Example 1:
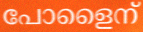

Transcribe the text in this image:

പോളൈന്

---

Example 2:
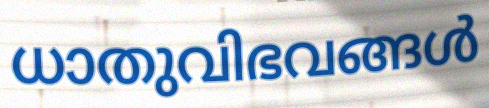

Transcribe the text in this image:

ധാതുവിഭവങ്ങൾ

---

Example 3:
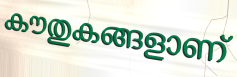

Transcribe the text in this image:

കൗതുകങ്ങളാണ്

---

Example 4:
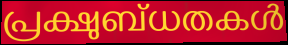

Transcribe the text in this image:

പ്രക്ഷുബ്ധതകൾ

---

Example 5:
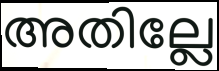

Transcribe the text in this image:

അതില്ലേ